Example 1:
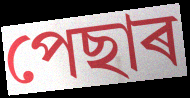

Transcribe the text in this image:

পেছাৰ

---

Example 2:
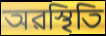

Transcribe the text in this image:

অৱস্থিতি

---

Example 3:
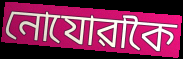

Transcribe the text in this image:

নোযোৱাকৈ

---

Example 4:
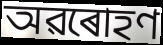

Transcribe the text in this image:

অৱৰোহণ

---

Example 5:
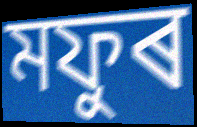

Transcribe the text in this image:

মফুৰ